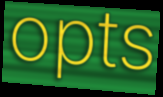
opts